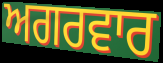
ਅਗਰਵਾਰ